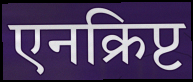
एनक्रिप्ट